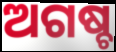
ଅଗଷ୍ଚ